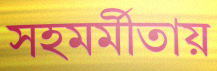
সহমর্মীতায়